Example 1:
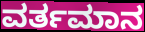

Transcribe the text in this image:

ವರ್ತಮಾನ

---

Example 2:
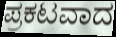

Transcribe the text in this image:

ಪ್ರಕಟವಾದ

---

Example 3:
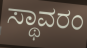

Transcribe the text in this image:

ಸ್ಥಾವರಂ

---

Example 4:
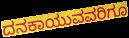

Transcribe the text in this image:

ದನಕಾಯುವವರಿಗೂ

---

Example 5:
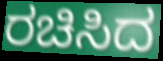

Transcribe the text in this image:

ರಚಿಸಿದ